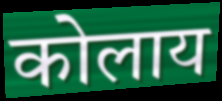
कोलाय